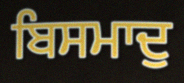
ਬਿਸਮਾਦੁ